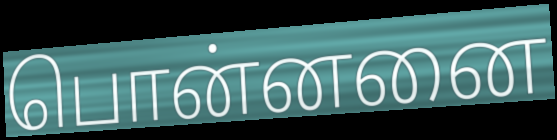
பொன்னனை